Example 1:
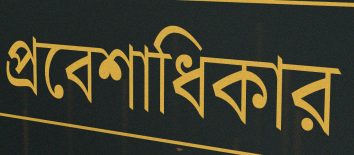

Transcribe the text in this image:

প্রবেশাধিকার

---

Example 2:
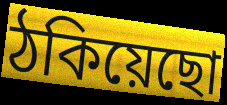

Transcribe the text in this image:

ঠকিয়েছো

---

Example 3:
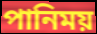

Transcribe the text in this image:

পানিময়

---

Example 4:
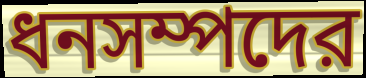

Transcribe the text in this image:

ধনসম্পদের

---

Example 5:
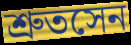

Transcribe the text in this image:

শ্রুতসেন